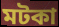
মটকা